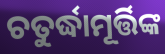
ଚତୁର୍ଦ୍ଧାମୂର୍ତ୍ତିଙ୍କ